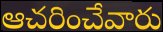
ఆచరించేవారు